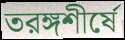
তরঙ্গশীর্ষে